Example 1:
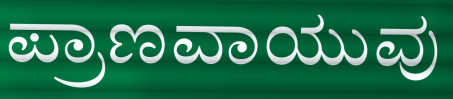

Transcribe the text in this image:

ಪ್ರಾಣವಾಯುವು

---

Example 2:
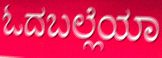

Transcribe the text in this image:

ಓದಬಲ್ಲೆಯಾ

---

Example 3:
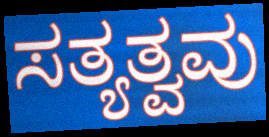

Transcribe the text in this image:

ಸತ್ಯತ್ವವು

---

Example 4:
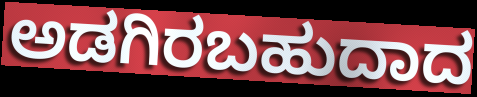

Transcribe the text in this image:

ಅಡಗಿರಬಹುದಾದ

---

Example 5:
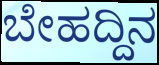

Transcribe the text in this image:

ಬೇಹದ್ದಿನ